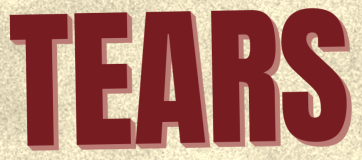
TEARS